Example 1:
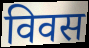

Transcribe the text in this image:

विवस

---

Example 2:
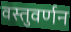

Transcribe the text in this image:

वस्तुवर्णन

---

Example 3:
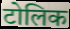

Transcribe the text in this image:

टोलिक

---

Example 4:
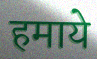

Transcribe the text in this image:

हमाये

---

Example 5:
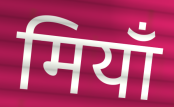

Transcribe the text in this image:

मियाँ